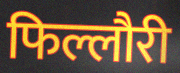
फिल्लौरी